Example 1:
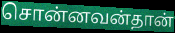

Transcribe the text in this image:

சொன்னவன்தான்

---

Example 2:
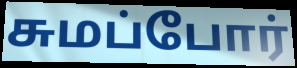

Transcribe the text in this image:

சுமப்போர்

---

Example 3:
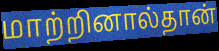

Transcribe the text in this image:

மாற்றினால்தான்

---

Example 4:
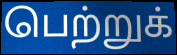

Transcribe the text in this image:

பெற்றுக்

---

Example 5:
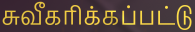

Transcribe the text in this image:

சுவீகரிக்கப்பட்டு